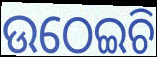
ଉଠେଇଚି